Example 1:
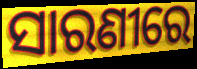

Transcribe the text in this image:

ସାରଣୀରେ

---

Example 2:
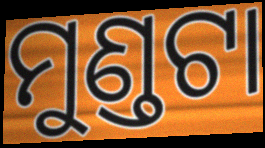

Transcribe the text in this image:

ମୁଣ୍ଡଟା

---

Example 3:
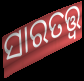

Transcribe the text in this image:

ସାରତତ୍ତ୍ଵ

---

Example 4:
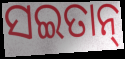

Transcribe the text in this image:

ସଇତାନ୍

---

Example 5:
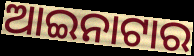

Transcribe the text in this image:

ଆଇନାଟାର